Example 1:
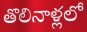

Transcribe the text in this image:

తొలినాళ్లలో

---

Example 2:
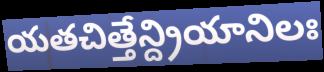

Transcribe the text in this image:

యతచిత్తేన్ద్రియానిలః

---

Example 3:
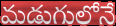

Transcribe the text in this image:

మడుగులోనే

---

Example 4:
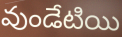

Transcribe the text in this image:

వుండేటియి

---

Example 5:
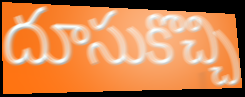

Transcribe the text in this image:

దూసుకొచ్చి